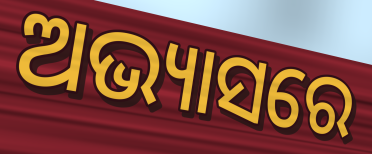
ଅଭ୍ୟାସରେ